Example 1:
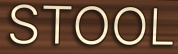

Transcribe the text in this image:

STOOL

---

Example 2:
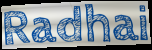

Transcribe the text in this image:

Radhai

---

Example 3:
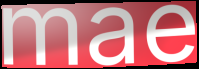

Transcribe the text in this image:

mae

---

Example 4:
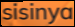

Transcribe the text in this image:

sisinya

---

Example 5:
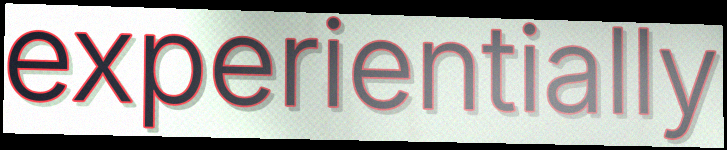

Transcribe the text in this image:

experientially